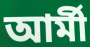
আৰ্মী